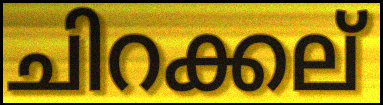
ചിറക്കല്